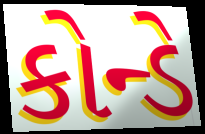
કોન્ડે